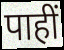
पाहीं